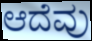
ಆದೆವು